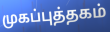
முகப்புத்தகம்